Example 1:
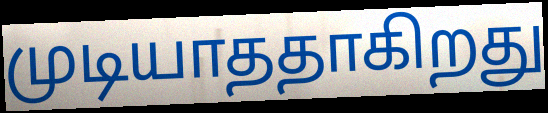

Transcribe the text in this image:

முடியாததாகிறது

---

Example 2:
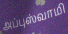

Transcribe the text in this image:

அப்புஸ்வாமி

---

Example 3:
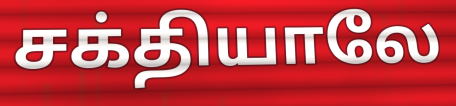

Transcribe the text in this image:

சக்தியாலே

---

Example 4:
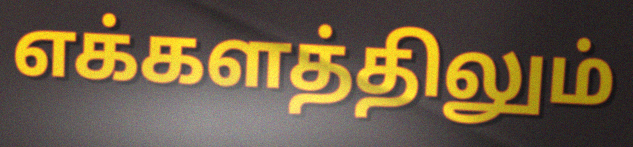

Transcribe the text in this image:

எக்களத்திலும்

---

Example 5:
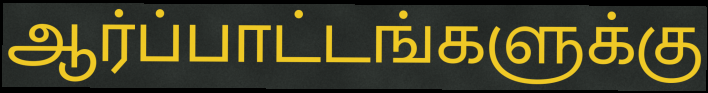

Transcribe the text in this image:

ஆர்ப்பாட்டங்களுக்கு